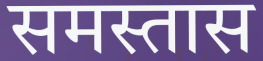
समस्तास